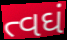
ત્વઘં